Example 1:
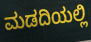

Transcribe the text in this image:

ಮಡದಿಯಲ್ಲಿ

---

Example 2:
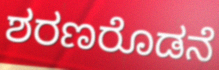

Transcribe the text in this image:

ಶರಣರೊಡನೆ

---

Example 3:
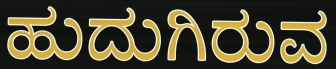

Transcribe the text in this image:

ಹುದುಗಿರುವ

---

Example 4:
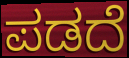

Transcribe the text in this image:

ಪಡದೆ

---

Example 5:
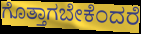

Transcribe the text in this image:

ಗೊತ್ತಾಗಬೇಕೆಂದರೆ